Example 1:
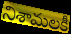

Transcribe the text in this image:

నిశామలకీ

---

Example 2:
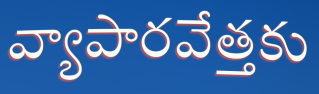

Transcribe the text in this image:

వ్యాపారవేత్తకు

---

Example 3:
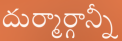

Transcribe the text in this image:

దుర్మార్గాన్నీ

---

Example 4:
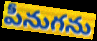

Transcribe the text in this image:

పీనుగను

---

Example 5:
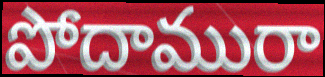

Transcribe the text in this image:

పోదామురా